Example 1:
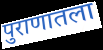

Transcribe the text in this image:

पुराणातला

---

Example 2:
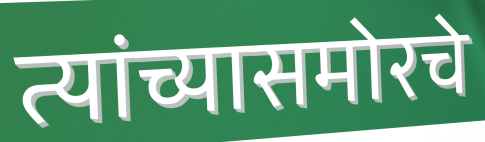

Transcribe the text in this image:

त्यांच्यासमोरचे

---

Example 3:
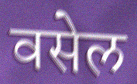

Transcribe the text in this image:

वसेल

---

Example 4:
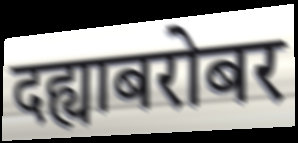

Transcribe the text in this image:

दह्याबरोबर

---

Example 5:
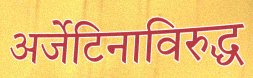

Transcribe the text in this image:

अर्जेटिनाविरुद्ध